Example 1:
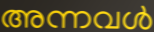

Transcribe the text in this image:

അന്നവൾ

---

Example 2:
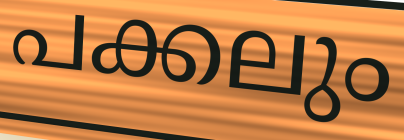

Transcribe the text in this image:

പക്കലും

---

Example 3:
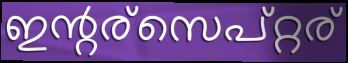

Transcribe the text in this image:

ഇന്റര്സെപ്റ്റര്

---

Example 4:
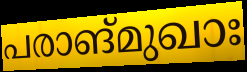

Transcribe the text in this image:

പരാങ്മുഖാഃ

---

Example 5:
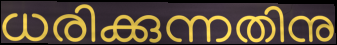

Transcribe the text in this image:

ധരിക്കുന്നതിനു